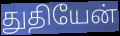
துதியேன்